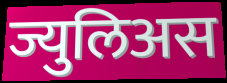
ज्युलिअस